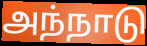
அந்நாடு